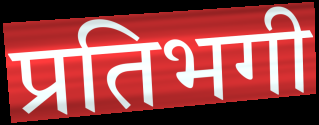
प्रतिभगी